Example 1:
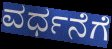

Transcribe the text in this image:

ವರ್ಧನೆಗೆ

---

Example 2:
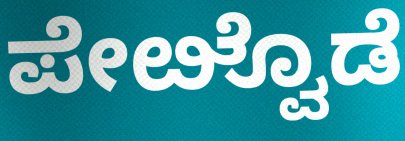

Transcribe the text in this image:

ಪೇೞ್ವೊಡೆ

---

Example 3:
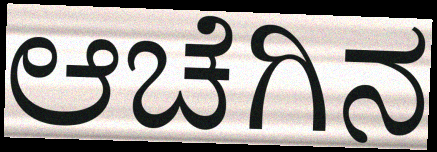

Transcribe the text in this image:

ಆಚೆಗಿನ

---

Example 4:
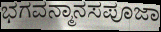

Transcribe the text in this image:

ಭಗವನ್ಮಾನಸಪೂಜಾ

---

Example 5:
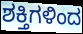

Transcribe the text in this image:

ಶಕ್ತಿಗಳಿಂದ